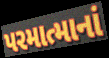
પરમાત્માનાં